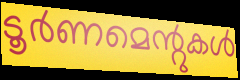
ടൂർണമെന്റുകൾ